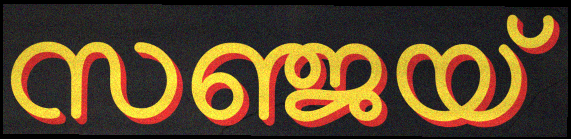
സഞ്ജയ്